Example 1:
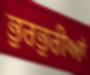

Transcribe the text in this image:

ਭੁਰਭੁਰੀਆਂ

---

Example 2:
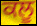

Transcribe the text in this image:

ਕਲੂ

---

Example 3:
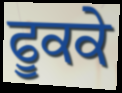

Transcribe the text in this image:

ਫੂਕਕੇ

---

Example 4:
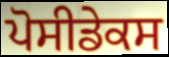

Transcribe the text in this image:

ਪੋਸੀਡੇਕਸ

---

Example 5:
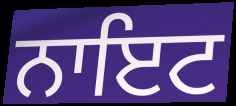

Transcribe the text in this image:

ਨਾਇਟ